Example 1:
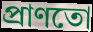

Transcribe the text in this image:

প্রাণতো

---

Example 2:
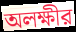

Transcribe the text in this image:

অলক্ষীর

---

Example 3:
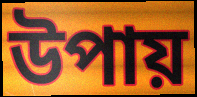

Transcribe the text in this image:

উপায়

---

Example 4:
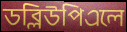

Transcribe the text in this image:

ডব্লিউপিএলে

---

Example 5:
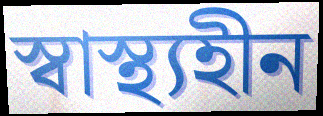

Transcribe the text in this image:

স্বাস্থ্যহীন